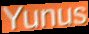
Yunus